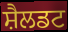
ਸ਼ੈਲਡਟ